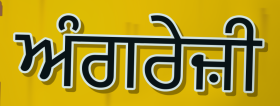
ਅੰਗਰੇਜ਼ੀ